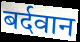
बर्दवान